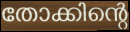
തോക്കിന്റെ